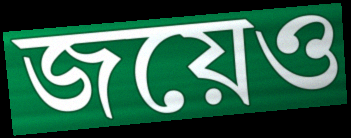
জয়েও